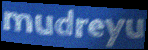
mudreyu